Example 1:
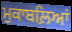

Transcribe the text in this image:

ਮੁਕਾਬਲ਼ਿਆਂ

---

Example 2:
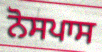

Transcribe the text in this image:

ਨੋਸਪਾਸ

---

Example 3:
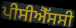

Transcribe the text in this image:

ਪੀਸੀਐੱਸਸੀ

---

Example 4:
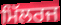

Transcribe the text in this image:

ਮਿੱਲਰਜ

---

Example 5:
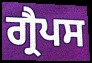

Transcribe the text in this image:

ਗ੍ਰੈਪਸ